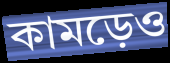
কামড়েও